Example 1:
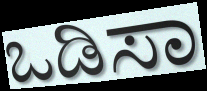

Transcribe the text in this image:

ಒಡಿಸಾ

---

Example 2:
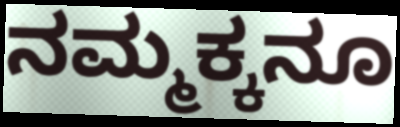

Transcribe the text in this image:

ನಮ್ಮಕ್ಕನೂ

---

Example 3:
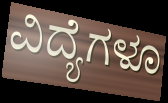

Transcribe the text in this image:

ವಿದ್ಯೆಗಳೂ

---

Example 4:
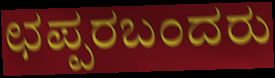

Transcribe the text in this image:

ಛಪ್ಪರಬಂದರು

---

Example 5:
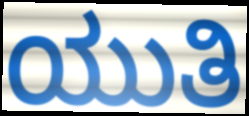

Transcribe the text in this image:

ಯುತಿ